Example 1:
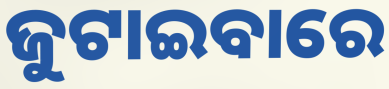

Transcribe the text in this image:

ଜୁଟାଇବାରେ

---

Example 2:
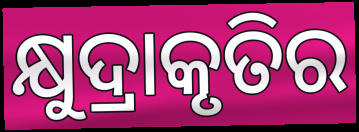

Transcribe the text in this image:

କ୍ଷୁଦ୍ରାକୃତିର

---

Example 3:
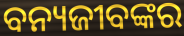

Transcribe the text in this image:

ବନ୍ୟଜୀବଙ୍କର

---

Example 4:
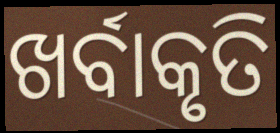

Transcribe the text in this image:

ଖର୍ବାକୃତି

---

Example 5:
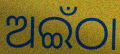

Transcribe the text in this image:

ଅଇଁଠା